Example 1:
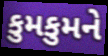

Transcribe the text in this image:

કુમકુમને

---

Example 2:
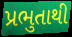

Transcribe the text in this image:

પ્રભુતાથી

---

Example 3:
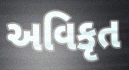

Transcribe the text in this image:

અવિકૃત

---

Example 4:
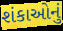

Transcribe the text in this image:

શંકાઓનું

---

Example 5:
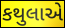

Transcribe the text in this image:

કથુલાએ